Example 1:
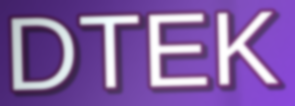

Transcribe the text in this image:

DTEK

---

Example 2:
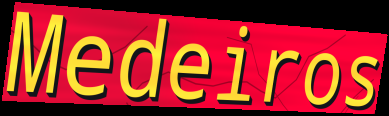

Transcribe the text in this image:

Medeiros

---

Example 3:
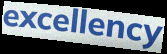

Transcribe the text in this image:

excellency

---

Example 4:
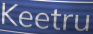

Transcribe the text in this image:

Keetru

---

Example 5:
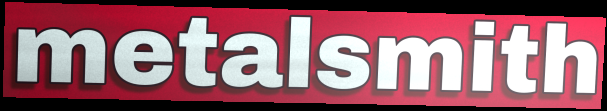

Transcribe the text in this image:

metalsmith